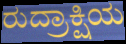
ರುದ್ರಾಕ್ಷಿಯ